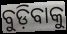
ବୁଡ଼ିବାକୁ